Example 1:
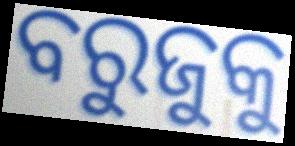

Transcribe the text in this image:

ବରୁଜୁକୁ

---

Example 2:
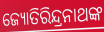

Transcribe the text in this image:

ଜ୍ୟୋତିରିନ୍ଦ୍ରନାଥଙ୍କ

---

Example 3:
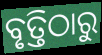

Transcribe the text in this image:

ବୃତ୍ତିଠାରୁ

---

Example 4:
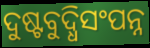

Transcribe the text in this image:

ଦୁଷ୍ଟବୁଦ୍ଧିସଂପନ୍ନ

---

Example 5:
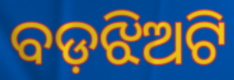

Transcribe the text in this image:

ବଡ଼ଝିଅଟି